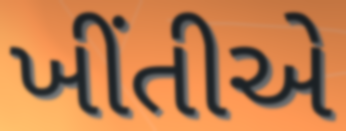
ખીંતીએ